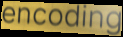
encoding